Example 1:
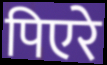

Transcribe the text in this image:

पिएरे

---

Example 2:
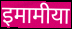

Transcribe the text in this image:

इमामीया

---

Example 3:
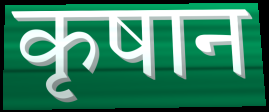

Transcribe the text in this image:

कृषान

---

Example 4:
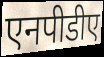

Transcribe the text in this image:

एनपीडीए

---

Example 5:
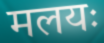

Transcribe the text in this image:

मलयः